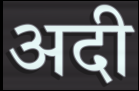
अदी